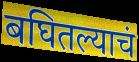
बघितल्याचं